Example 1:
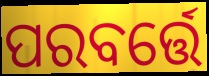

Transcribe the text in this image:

ପରବର୍ତ୍ତେ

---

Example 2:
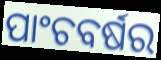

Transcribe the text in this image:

ପାଂଚବର୍ଷର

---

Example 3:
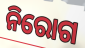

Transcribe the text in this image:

ନିରୋଗ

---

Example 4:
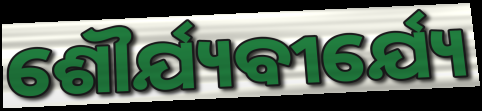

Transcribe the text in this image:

ଶୌର୍ଯ୍ୟବୀର୍ଯ୍ୟେ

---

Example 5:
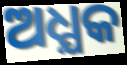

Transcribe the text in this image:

ଅଧ୍ଯକ